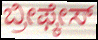
ಬ್ರೀಫ್ಕೇಸ್